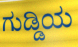
ಗುಡ್ಡಿಯ